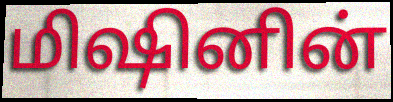
மிஷினின்